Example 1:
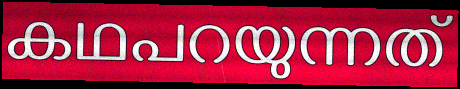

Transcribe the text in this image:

കഥപറയുന്നത്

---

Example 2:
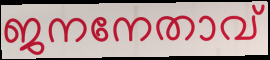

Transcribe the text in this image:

ജനനേതാവ്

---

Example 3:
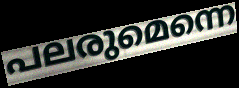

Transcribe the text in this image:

പലരുമെന്നെ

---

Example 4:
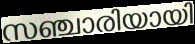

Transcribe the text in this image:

സഞ്ചാരിയായി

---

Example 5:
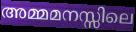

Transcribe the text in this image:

അമ്മമനസ്സിലെ